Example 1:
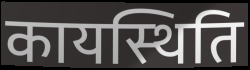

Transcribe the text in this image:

कायस्थिति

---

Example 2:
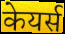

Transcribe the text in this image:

केयर्स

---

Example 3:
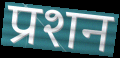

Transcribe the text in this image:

प्रशन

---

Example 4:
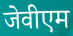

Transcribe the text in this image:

जेवीएम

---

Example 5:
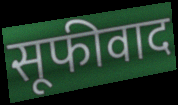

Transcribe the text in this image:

सूफीवाद